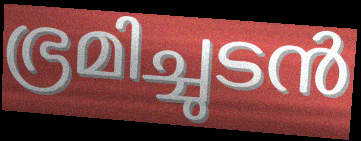
ഭ്രമിച്ചുടൻ